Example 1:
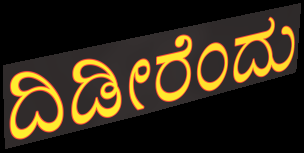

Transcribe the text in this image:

ದಿಡೀರೆಂದು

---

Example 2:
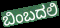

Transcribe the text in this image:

ಬಿಂಬದಲಿ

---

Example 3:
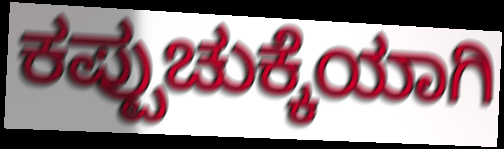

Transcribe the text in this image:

ಕಪ್ಪುಚುಕ್ಕೆಯಾಗಿ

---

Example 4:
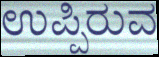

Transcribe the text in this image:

ಉಪ್ಪಿರುವ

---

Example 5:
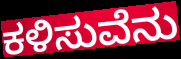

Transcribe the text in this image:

ಕಳಿಸುವೆನು